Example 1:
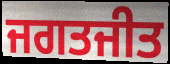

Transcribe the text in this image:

ਜਗਤਜੀਤ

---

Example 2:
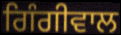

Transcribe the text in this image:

ਗਿੰਗੀਵਾਲ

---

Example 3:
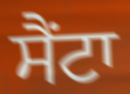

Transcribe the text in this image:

ਸੈਂਟਾ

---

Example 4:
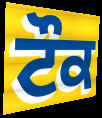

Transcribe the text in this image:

ਟੌਕ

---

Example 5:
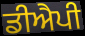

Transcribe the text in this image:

ਡੀਐਪੀ